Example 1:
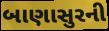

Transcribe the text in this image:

બાણાસુરની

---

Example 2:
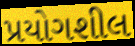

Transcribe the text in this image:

પ્રયોગશીલ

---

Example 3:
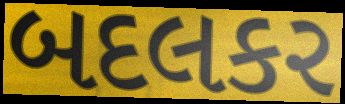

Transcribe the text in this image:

બદલકર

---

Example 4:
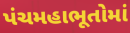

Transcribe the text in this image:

પંચમહાભૂતોમાં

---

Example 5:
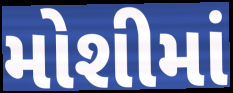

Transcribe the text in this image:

મોશીમાં